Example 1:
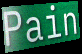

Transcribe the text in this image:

Pain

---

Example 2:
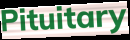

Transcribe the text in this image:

Pituitary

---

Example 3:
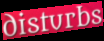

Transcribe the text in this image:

disturbs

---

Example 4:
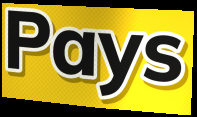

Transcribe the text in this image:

Pays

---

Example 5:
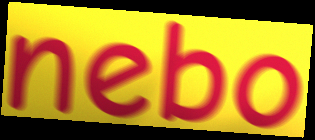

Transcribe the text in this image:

nebo